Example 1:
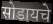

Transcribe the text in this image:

सोडायचे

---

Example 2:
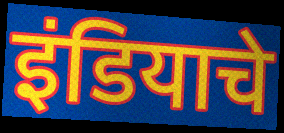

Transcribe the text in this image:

इंडियाचे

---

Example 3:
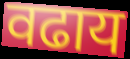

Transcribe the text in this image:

वढाय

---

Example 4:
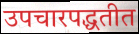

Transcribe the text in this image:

उपचारपद्धतीत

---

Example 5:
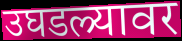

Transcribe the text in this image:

उघडल्यावर